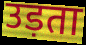
उड़ता